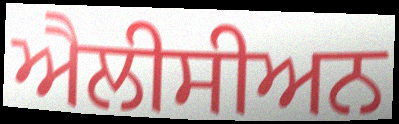
ਐਲੀਸੀਅਨ